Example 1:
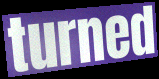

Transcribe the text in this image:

turned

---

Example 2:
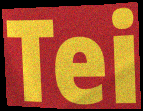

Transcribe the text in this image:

Tei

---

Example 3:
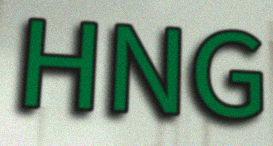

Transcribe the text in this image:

HNG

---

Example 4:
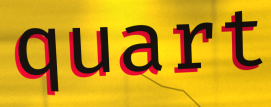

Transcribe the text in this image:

quart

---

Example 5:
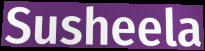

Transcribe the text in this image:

Susheela